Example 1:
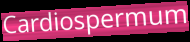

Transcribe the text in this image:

Cardiospermum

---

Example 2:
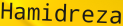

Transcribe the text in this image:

Hamidreza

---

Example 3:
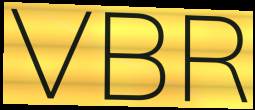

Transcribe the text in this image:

VBR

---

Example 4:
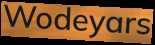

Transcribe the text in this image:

Wodeyars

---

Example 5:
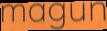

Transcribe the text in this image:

magun